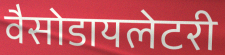
वैसोडायलेटरी